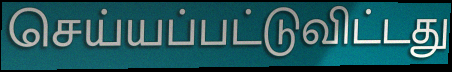
செய்யப்பட்டுவிட்டது